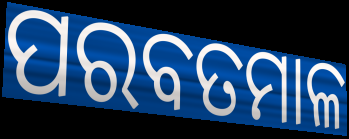
ପରବତମାଳ